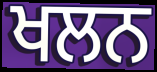
ਖਲਨ